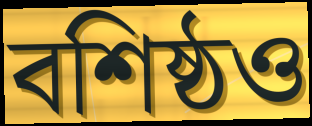
বশিষ্ঠও